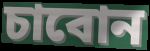
চাবোন